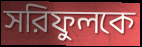
সরিফুলকে